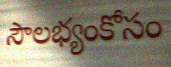
సౌలభ్యంకోసం